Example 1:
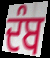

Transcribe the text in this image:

ਦੰਬ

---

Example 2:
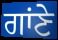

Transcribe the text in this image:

ਗਾਂਣੇ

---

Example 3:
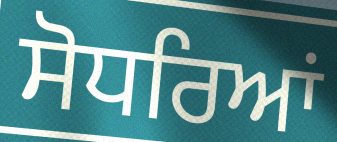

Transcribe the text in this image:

ਸੋਧਰਿਆਂ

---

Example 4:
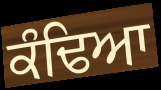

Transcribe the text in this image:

ਕੰਢਿਆ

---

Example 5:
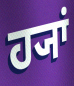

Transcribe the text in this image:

ਹ੍ਯਾਂ